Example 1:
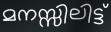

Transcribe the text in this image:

മനസ്സിലിട്ട്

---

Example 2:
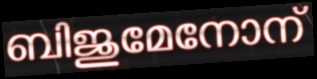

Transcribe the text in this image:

ബിജുമേനോന്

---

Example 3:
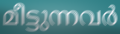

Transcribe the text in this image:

മീട്ടുന്നവർ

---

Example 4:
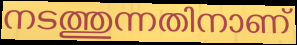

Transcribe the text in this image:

നടത്തുന്നതിനാണ്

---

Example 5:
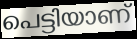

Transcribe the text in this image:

പെട്ടിയാണ്